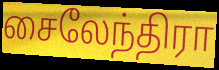
சைலேந்திரா